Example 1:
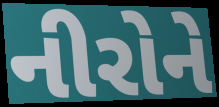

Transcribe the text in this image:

નીરોને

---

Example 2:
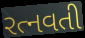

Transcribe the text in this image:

રત્નવતી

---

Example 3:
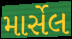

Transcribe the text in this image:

માર્સેલ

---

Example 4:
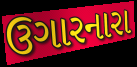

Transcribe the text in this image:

ઉગારનારા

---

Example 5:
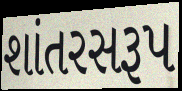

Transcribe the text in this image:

શાંતરસરૂપ